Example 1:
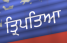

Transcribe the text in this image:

ਤ੍ਰਿਪਤਿਆ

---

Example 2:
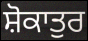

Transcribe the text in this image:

ਸ਼ੋਕਾਤੁਰ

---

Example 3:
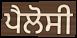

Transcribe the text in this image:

ਪੈਲੋਸੀ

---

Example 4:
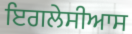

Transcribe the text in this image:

ਇਗਲੇਸੀਆਸ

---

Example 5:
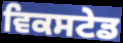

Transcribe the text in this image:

ਵਿਕਸਟੇਡ